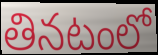
తినటంలో